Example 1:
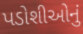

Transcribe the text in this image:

પડોશીઓનું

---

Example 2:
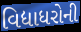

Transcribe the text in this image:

વિદ્યાધરોની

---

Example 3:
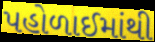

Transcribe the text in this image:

પહોળાઈમાંથી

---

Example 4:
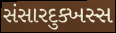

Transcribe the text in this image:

સંસારદુક્ખસ્સ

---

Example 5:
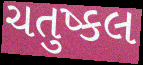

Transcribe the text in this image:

ચતુષ્કલ